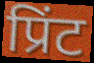
प्रिंट